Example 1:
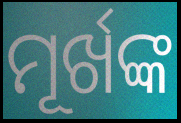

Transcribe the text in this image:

ମୂର୍ଖଙ୍କ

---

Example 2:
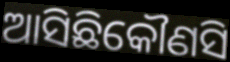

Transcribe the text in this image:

ଆସିଛିକୌଣସି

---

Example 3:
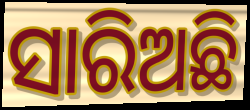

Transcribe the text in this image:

ସାରିଅଛି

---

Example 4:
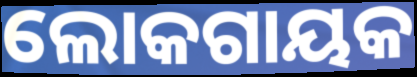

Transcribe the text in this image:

ଲୋକଗାୟକ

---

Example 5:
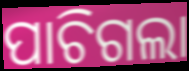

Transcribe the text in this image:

ପାଚିଗଲା